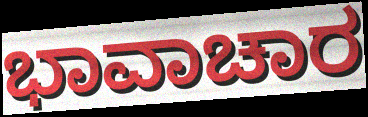
ಭಾವಾಚಾರ